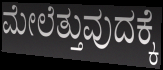
ಮೇಲೆತ್ತುವುದಕ್ಕೆ